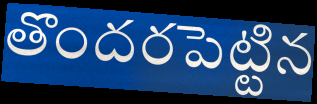
తొందరపెట్టిన